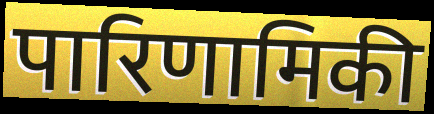
पारिणामिकी